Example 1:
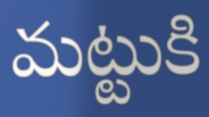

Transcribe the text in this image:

మట్టుకి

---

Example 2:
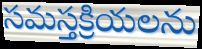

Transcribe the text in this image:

సమస్తక్రియలను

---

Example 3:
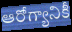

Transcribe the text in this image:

ఆరోగ్యానికీ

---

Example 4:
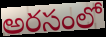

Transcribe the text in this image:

అరసంలో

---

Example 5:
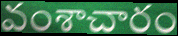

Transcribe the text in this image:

వంశాచారం